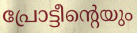
പ്രോട്ടീന്റെയും